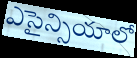
ఎసైన్సియాలో